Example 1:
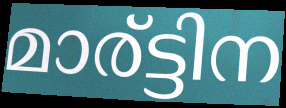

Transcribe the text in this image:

മാര്ട്ടിന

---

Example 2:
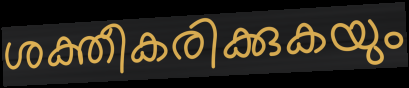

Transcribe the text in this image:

ശക്തീകരിക്കുകയും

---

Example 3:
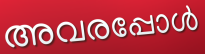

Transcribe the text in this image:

അവരപ്പോൾ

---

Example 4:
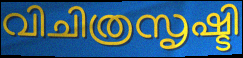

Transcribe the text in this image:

വിചിത്രസൃഷ്ടി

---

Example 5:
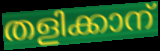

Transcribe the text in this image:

തളിക്കാന്